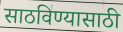
साठविण्यासाठी